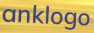
anklogo